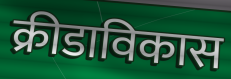
क्रीडाविकास